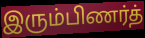
இரும்பிணர்த்